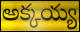
అక్కయ్య